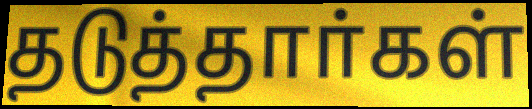
தடுத்தார்கள்